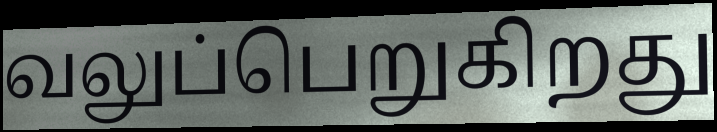
வலுப்பெறுகிறது